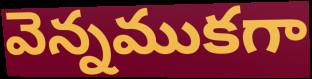
వెన్నముకగా